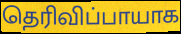
தெரிவிப்பாயாக